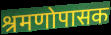
श्रमणोपासक